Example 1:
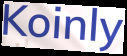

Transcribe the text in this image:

Koinly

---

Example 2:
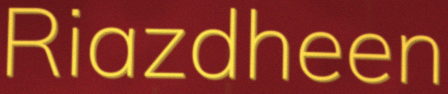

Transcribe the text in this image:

Riazdheen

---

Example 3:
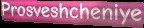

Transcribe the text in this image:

Prosveshcheniye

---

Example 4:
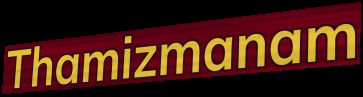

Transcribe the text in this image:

Thamizmanam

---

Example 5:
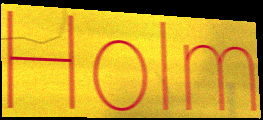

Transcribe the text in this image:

Holm